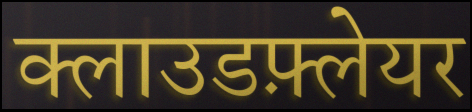
क्लाउडफ़्लेयर